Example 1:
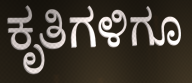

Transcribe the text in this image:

ಕೃತಿಗಳಿಗೂ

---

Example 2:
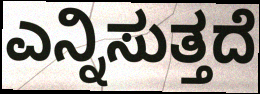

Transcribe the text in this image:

ಎನ್ನಿಸುತ್ತದೆ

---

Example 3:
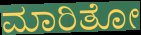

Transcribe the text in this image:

ಮಾರಿತೋ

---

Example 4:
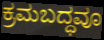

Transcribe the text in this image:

ಕ್ರಮಬದ್ಧವೂ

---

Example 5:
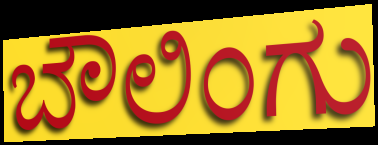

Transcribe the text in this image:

ಬೌಲಿಂಗು